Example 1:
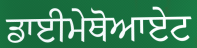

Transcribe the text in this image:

ਡਾਈਮੇਥੋਆਏਟ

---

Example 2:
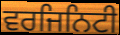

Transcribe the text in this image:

ਵਰਜਿਨਿਟੀ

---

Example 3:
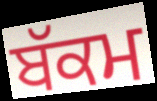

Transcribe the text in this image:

ਬੱਕਮ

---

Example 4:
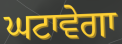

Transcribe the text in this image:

ਘਟਾਵੇਗਾ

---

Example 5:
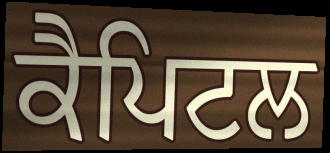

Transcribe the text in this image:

ਕੈਪਿਟਲ